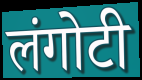
लंगोटी